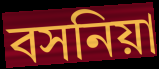
বসনিয়া